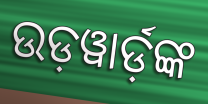
ଉଡ଼ୱାର୍ଡ଼ଙ୍କ